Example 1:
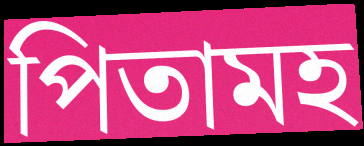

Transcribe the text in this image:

পিতামহ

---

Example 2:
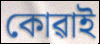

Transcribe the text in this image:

কোৱাই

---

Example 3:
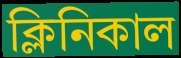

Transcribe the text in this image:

ক্লিনিকাল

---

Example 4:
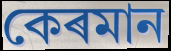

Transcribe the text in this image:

কেৰমান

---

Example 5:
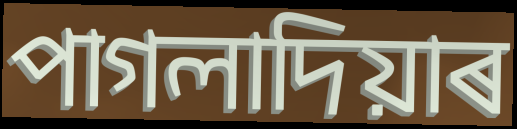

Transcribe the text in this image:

পাগলাদিয়াৰ